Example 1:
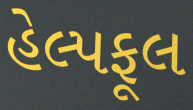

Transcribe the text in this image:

હેલ્પફૂલ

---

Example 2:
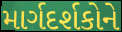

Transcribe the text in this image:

માર્ગદર્શકોને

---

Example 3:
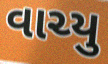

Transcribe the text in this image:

વાચ્યુ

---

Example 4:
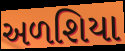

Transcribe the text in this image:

અળશિયા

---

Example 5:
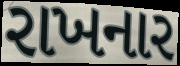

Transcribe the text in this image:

રાખનાર